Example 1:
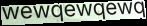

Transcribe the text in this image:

wewqewqewq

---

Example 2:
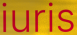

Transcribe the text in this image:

iuris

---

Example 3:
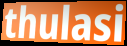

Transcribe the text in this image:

thulasi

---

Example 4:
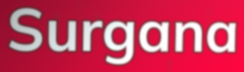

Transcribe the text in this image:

Surgana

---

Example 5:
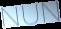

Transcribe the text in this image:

NUN